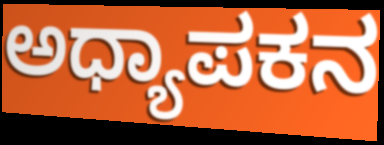
ಅಧ್ಯಾಪಕನ